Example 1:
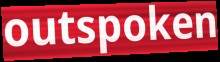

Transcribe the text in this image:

outspoken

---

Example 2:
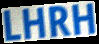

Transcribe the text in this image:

LHRH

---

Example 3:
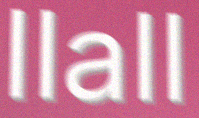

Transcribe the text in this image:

llall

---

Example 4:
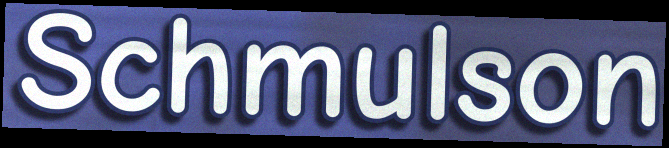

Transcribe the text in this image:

Schmulson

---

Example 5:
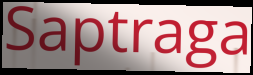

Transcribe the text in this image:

Saptraga